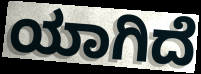
ಯಾಗಿದೆ